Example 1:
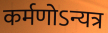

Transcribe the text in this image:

कर्मणोऽन्यत्र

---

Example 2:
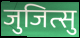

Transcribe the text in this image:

जुजित्सु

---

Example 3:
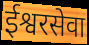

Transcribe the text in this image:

ईश्वरसेवा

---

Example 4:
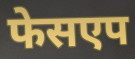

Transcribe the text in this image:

फेसएप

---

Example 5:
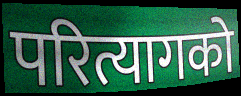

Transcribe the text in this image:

परित्यागको